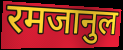
रमजानुल